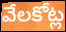
వేలకోట్ల